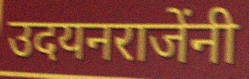
उदयनराजेंनी